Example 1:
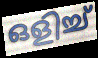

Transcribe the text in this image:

ഒളിച്ച്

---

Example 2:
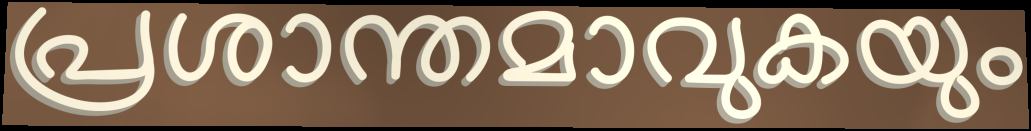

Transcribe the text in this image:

പ്രശാന്തമാവുകയും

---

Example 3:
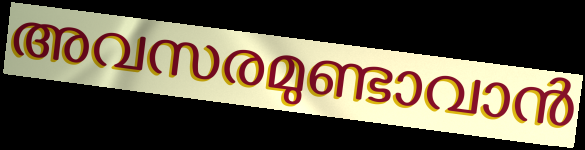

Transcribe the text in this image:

അവസരമുണ്ടാവാൻ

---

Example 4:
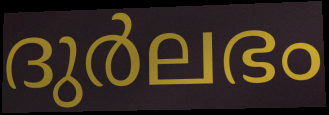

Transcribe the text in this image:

ദുർലഭം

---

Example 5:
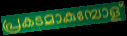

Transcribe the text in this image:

പ്രകടമാകുമ്പോള്